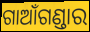
ଗାଆଁଗଣ୍ଡାର